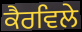
ਕੈਰਵਿਲੇ